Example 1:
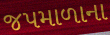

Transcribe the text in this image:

જપમાળાના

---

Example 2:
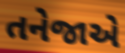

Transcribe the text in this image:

તનેજાએ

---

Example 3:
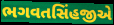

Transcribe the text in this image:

ભગવતસિંહજીએ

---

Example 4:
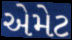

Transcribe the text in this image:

એમેટ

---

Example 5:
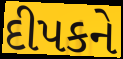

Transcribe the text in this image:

દીપકને